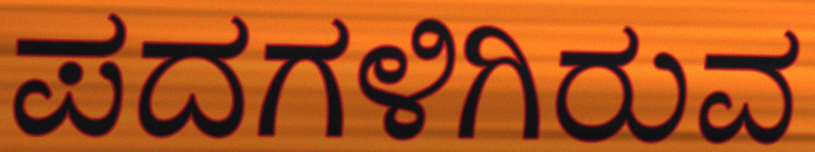
ಪದಗಳಿಗಿರುವ